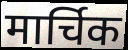
मार्चिक